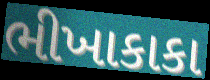
ભીખાકાકા